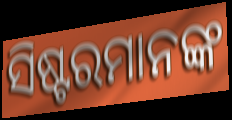
ସିଷ୍ଟରମାନଙ୍କ